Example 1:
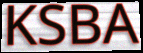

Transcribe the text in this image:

KSBA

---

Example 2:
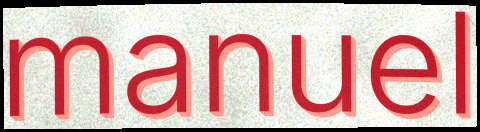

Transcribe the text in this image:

manuel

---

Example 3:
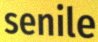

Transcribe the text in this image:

senile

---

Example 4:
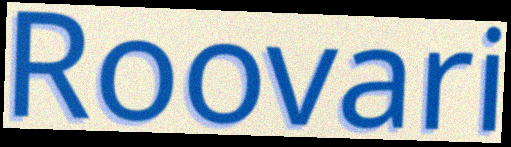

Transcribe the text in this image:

Roovari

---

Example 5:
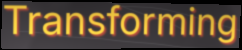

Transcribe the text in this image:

Transforming